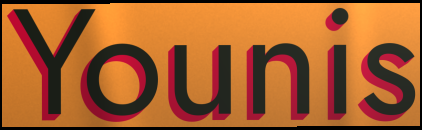
Younis